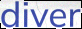
diver